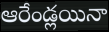
ఆరేండ్లయినా